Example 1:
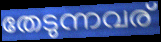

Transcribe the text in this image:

തേടുന്നവര്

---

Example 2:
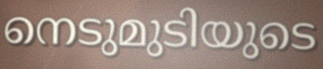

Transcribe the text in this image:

നെടുമുടിയുടെ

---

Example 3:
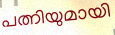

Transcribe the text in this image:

പത്നിയുമായി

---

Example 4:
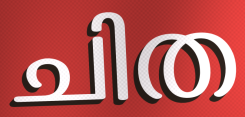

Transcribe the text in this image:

ചിത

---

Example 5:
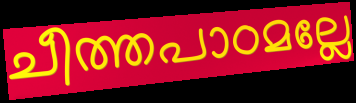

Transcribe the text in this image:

ചീത്തപാഠമല്ലേ